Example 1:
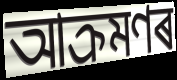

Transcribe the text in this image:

আক্ৰমণৰ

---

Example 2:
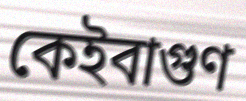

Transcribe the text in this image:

কেইবাগুণ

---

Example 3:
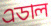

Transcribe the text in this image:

এডাল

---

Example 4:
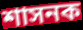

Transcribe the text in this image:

শাসনক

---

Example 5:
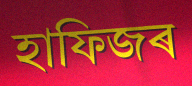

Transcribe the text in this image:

হাফিজৰ